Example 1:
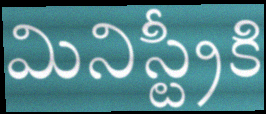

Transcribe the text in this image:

మినిస్ట్రీకి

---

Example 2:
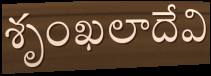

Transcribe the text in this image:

శృంఖలాదేవి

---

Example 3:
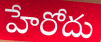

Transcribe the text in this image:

హేరోదు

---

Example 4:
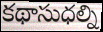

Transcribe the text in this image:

కథాసుధల్ని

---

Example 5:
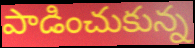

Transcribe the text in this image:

పాడించుకున్న